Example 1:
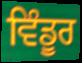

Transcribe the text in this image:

ਵਿੰਡੂਰ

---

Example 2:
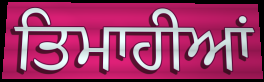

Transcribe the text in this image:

ਤਿਮਾਹੀਆਂ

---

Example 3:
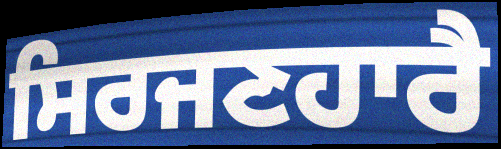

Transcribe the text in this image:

ਸਿਰਜਣਹਾਰੈ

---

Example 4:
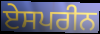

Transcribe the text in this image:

ਏਸਪਰੀਨ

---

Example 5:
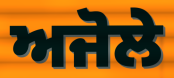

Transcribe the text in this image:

ਅਜੋਲੇ